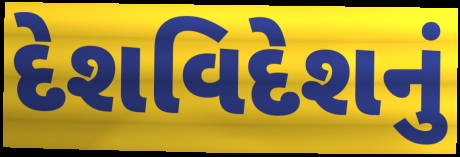
દેશવિદેશનું